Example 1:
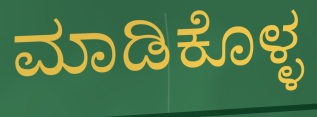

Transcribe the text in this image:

ಮಾಡಿಕೊಳ್ಳ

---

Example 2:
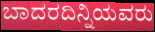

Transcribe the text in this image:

ಬಾದರದಿನ್ನಿಯವರು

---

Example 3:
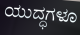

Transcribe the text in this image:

ಯುದ್ಧಗಳೂ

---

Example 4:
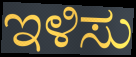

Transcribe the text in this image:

ಇಳಿಸು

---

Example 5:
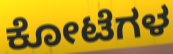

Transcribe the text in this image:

ಕೋಟೆಗಳ